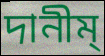
দানীম্